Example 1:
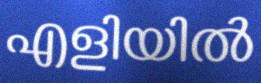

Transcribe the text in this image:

എളിയിൽ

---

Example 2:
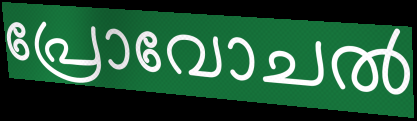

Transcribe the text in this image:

പ്രോവോചൽ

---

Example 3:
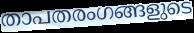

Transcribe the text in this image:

താപതരംഗങ്ങളുടെ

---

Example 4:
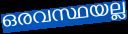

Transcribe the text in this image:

ഒരവസ്ഥയല്ല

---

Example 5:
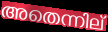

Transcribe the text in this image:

അതെന്നില്